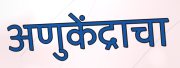
अणुकेंद्राचा